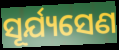
ସୂର୍ଯ୍ୟସେଣ